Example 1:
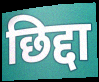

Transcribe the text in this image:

छिद्दा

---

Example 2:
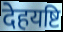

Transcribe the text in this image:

देहयष्टि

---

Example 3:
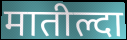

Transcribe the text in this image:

मातील्‍दा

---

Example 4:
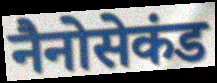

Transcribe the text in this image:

नैनोसेकंड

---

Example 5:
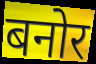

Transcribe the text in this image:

बनोर